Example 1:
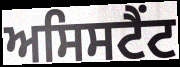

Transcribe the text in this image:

ਅਸਿਸਟੈਂਟ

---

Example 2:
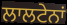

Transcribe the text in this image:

ਲਾਲਟੇਨਾਂ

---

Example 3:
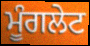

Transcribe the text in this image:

ਮੂੰਗਲੇਟ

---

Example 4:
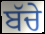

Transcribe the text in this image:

ਬੱਚੇ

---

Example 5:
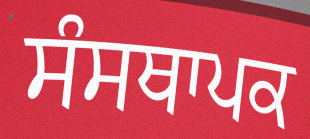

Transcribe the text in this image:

ਸੰਸਥਾਪਕ